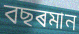
বছৰমান